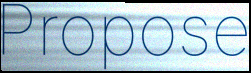
Propose